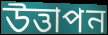
উত্তাপন